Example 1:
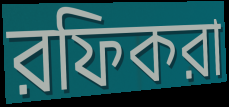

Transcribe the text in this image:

রফিকরা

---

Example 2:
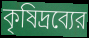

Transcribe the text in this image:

কৃষিদ্রব্যের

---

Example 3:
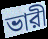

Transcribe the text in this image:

ভারী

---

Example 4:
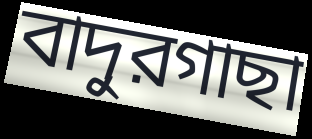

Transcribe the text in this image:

বাদুরগাছা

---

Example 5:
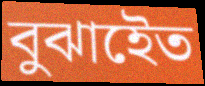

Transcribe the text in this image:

বুঝাইেত